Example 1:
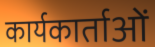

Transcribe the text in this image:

कार्यकार्ताओं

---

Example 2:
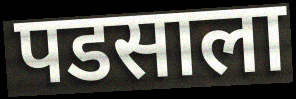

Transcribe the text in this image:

पडसाला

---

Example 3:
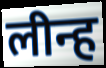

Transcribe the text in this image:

लीन्ह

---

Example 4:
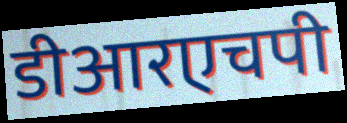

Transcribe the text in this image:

डीआरएचपी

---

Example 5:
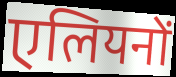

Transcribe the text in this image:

एलियनों